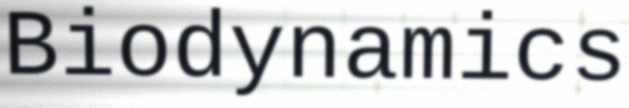
Biodynamics